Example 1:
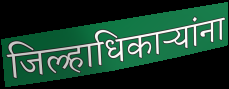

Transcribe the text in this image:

जिल्हाधिकाऱ्यांना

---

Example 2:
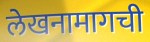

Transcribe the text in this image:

लेखनामागची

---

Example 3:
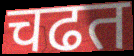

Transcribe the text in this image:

चढत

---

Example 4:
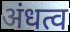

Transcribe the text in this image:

अंधत्व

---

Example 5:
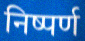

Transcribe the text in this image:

निष्पर्ण